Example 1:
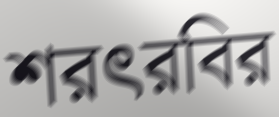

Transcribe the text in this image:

শরৎরবির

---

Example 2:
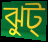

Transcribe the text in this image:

ঝুট্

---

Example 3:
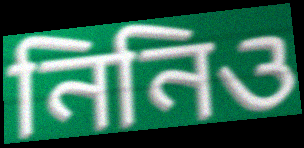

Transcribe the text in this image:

নিনিও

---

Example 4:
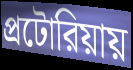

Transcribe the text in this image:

প্রটোরিয়ায়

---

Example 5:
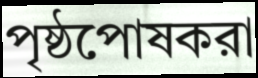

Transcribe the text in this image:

পৃষ্ঠপোষকরা